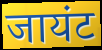
जायंट